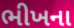
ભીખના